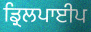
ਡ੍ਰਿਲਪਾਈਪ